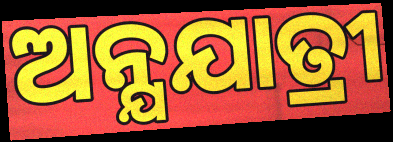
ଅନ୍ଯଯାତ୍ରୀ